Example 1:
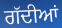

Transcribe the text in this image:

ਗੱਦੀਆਂ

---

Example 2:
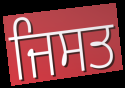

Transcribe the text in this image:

ਜਿਸਤ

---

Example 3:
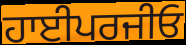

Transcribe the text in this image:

ਹਾਈਪਰਜੀਓ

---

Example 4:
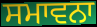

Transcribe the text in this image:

ਸਮਾਵਨਾ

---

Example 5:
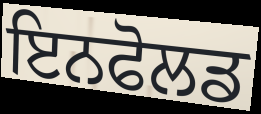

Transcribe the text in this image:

ਇਨਫੋਲਡ